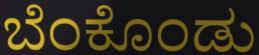
ಬೆಂಕೊಂಡು